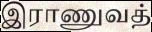
இராணுவத்